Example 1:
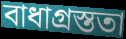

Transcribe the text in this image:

বাধাগ্ৰস্ততা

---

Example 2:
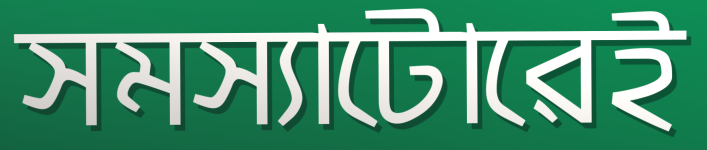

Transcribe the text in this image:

সমস্যাটোৱেই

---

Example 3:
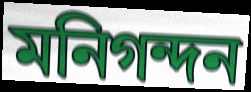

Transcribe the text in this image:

মনিগন্দন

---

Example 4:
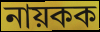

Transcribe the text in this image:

নায়কক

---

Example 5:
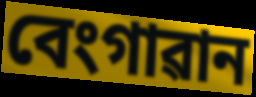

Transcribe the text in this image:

বেংগাৱান